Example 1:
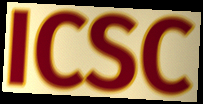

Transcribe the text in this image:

ICSC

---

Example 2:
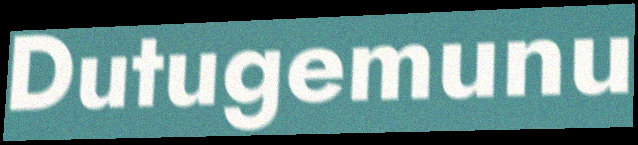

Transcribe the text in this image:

Dutugemunu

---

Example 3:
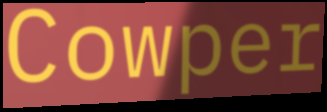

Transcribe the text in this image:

Cowper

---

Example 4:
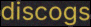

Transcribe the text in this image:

discogs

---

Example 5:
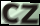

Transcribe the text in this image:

cz